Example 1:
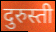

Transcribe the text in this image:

दुरुस्ती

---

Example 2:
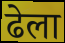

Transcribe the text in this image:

ढेला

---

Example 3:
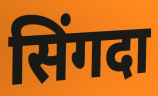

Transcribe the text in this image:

सिंगदा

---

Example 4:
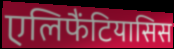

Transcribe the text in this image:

एलिफैंटियासिस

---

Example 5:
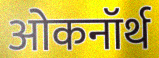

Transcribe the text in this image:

ओकनॉर्थ